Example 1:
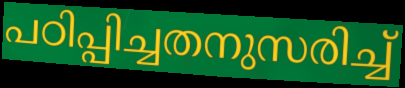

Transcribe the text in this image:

പഠിപ്പിച്ചതനുസരിച്ച്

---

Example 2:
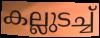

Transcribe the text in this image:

കല്ലുടച്ച്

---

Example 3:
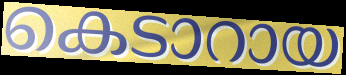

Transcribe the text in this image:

കെടാറായ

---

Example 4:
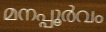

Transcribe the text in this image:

മനപ്പൂർവം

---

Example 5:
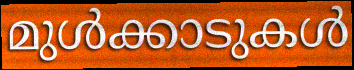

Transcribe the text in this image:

മുൾക്കാടുകൾ